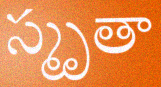
స్మృతా